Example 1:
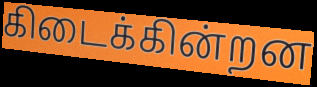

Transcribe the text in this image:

கிடைக்கின்றன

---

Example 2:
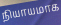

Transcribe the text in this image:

நியாயமாக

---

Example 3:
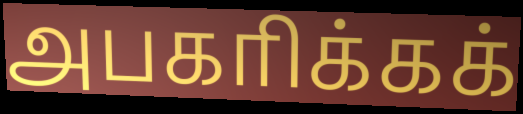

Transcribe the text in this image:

அபகரிக்கக்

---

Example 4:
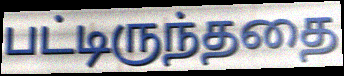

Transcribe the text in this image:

பட்டிருந்ததை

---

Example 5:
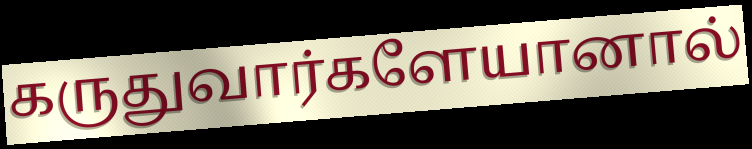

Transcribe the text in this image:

கருதுவார்களேயானால்